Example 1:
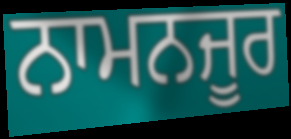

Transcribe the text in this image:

ਨਾਮਨਜੂਰ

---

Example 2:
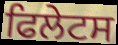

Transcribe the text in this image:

ਫਿਲੇਟਸ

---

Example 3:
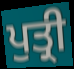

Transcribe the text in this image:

ਪੁਤ੍ਰੀ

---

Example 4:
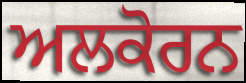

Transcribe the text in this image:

ਅਲਕੋਰਨ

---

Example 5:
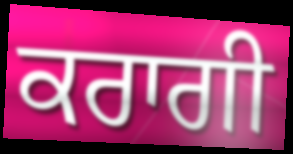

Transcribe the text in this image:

ਕਰਾਗੀ